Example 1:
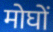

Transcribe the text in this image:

मोघों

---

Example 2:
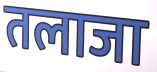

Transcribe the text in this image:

तलाजा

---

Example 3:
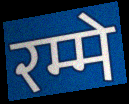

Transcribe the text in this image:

रम्मे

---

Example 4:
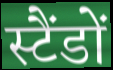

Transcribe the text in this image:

स्टैंडों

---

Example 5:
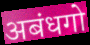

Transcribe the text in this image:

अबंधगो